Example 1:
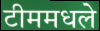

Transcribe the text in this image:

टीममधले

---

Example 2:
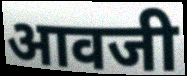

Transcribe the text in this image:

आवजी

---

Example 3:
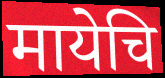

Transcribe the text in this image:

मायेचि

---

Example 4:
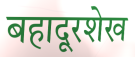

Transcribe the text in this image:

बहादूरशेख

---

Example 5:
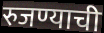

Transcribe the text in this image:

रुजण्याची